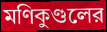
মণিকুণ্ডলের